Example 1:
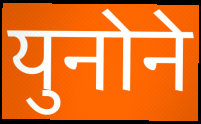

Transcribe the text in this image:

युनोने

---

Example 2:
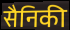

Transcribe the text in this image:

सैनिकी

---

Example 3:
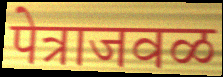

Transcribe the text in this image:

पेत्राजवळ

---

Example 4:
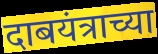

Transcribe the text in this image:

दाबयंत्राच्या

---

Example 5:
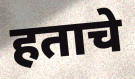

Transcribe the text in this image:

हताचे